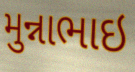
મુન્નાભાઇ